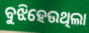
ବୁଝିହେଉଥିଲା